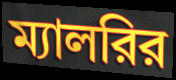
ম্যালরির